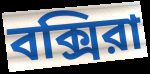
বক্সিরা